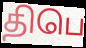
திபெ